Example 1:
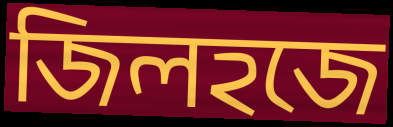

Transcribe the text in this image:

জিলহজে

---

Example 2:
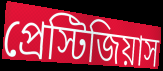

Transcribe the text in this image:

প্রেস্টিজিয়াস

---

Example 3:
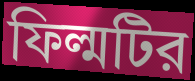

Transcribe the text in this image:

ফিল্মটির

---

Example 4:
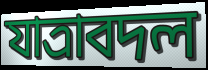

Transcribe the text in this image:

যাত্রাবদল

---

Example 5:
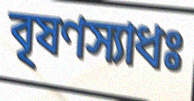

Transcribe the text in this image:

বৃষণস্যাধঃ